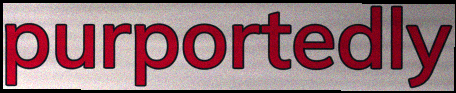
purportedly